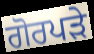
ਗੋਰਪੜੇ